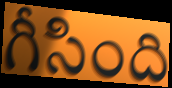
గీసింది